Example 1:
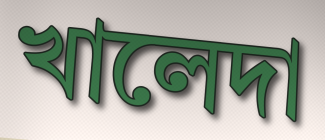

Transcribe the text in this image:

খালেদা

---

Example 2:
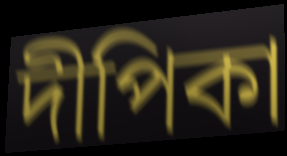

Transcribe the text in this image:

দীপিকা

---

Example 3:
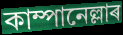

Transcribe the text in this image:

কাম্পানেল্লাৰ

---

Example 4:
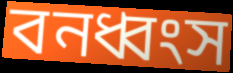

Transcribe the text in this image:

বনধ্বংস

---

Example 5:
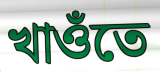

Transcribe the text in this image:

খাওঁতে